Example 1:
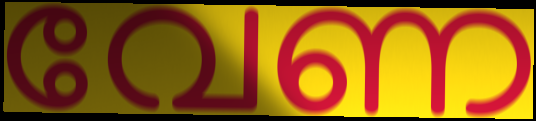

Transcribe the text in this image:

വേണ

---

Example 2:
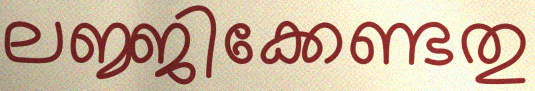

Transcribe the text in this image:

ലജ്ജിക്കേണ്ടതു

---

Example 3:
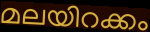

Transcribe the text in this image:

മലയിറക്കം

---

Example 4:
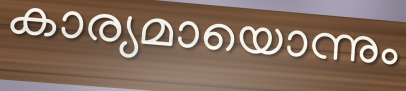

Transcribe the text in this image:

കാര്യമായൊന്നും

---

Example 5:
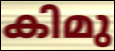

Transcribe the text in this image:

കിമു